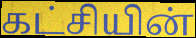
கட்சியின்